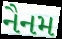
નૈનમ